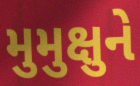
મુમુક્ષુને